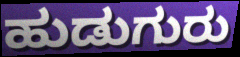
ಹುಡುಗುರು